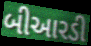
બીઆરડી